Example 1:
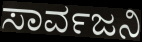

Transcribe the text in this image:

ಸಾರ್ವಜನಿ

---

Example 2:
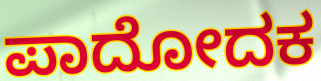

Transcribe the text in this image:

ಪಾದೋದಕ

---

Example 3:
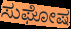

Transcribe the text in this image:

ಸುಘೋಷ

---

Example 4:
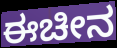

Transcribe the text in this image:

ಈಚೀನ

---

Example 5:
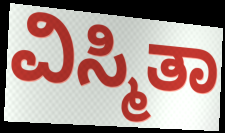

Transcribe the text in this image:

ವಿಸ್ಮಿತಾ